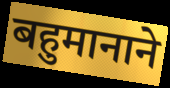
बहुमानाने